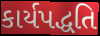
કાર્યપદ્ધતિ